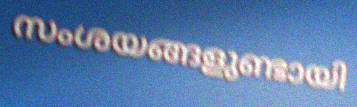
സംശയങ്ങളുണ്ടായി